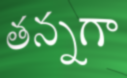
తన్నగా